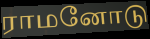
ராமனோடு